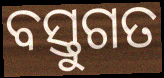
ବସ୍ତୁଗତ